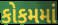
કોકમમાં